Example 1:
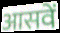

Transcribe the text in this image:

आसवें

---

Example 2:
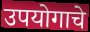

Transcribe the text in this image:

उपयोगाचे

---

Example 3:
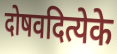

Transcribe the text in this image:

दोषवदित्येके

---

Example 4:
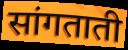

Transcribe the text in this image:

सांगताती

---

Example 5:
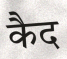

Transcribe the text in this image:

कैद